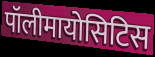
पॉलीमायोसिटिस